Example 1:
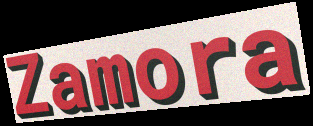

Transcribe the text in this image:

Zamora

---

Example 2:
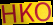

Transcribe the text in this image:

HKO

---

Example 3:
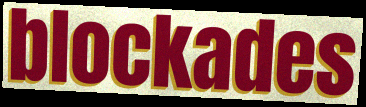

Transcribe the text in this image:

blockades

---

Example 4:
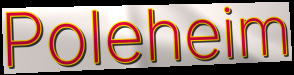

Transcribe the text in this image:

Poleheim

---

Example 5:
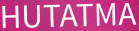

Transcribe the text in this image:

HUTATMA